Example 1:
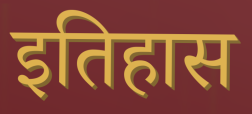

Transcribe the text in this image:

इतिहास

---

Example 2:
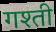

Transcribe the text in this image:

गश्ती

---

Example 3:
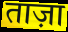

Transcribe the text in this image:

ताज़ा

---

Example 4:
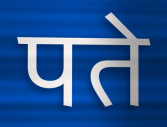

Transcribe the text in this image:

पते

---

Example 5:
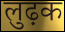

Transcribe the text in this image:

लुढ़क